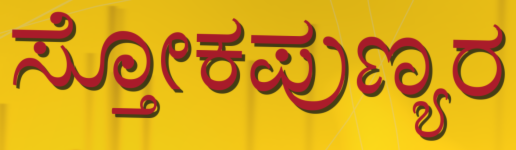
ಸ್ತೋಕಪುಣ್ಯರ